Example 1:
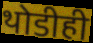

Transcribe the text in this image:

थोडीही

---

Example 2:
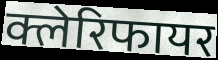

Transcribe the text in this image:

क्लेरिफायर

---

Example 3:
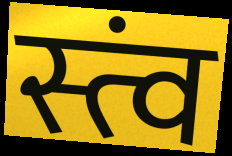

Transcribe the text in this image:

स्त्वं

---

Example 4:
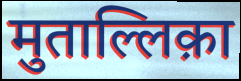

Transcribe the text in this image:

मुताल्लिक़ा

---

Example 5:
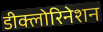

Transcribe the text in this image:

डीक्लोरिनेशन